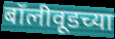
बॉलीवूडच्या